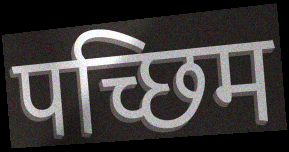
पच्छिम